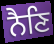
ਨੈਣਿ